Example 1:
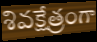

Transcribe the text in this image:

శివక్షేత్రంగా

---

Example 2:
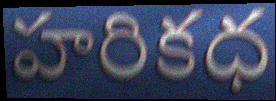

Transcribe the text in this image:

హరికధ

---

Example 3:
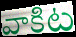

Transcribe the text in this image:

వాకిట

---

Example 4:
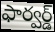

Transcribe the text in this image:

ఫార్వర్డ్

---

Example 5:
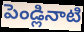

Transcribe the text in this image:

పెండ్లినాటి